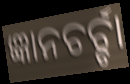
ଜ୍ଞାନଚର୍ଚ୍ଚା